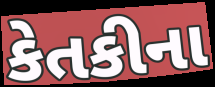
કેતકીના